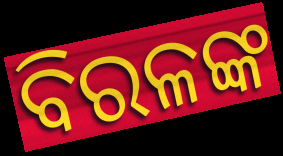
ବିରଳଙ୍କ